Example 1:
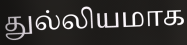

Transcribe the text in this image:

துல்லியமாக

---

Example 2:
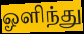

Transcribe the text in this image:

ஓளிந்து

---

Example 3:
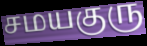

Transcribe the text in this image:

சமயகுரு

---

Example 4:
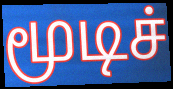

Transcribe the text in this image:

மூடிச்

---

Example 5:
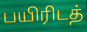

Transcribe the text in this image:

பயிரிடத்